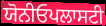
ਯੋਨੀਓਪਲਾਸਟੀ